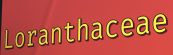
Loranthaceae